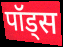
पॉड्स